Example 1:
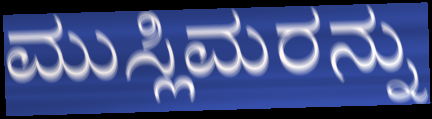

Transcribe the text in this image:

ಮುಸ್ಲಿಮರನ್ನು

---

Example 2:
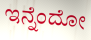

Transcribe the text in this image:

ಇನ್ನೆಂದೋ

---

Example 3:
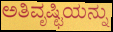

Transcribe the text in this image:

ಅತಿವೃಷ್ಟಿಯನ್ನು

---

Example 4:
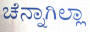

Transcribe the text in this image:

ಚೆನ್ನಾಗಿಲ್ಲಾ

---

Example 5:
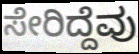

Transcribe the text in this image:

ಸೇರಿದ್ದೆವು